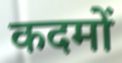
कदमों